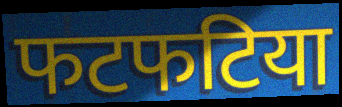
फटफटिया